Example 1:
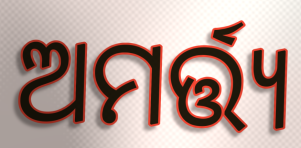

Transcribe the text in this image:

ଅମର୍ତ୍ତ୍ୟ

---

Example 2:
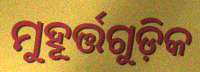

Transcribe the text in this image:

ମୁହୂର୍ତ୍ତଗୁଡ଼ିକ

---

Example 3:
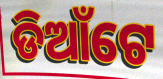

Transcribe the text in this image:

ଡିଆଁଟେ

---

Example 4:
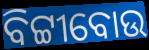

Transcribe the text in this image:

ବିଟ୍ଟୀବୋଉ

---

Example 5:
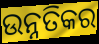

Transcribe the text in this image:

ଉନ୍ନତିକର